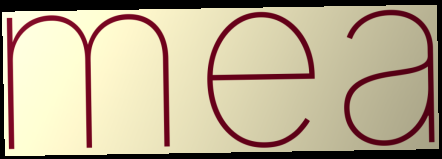
mea